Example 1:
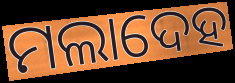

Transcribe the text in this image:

ମଲାଦେହ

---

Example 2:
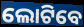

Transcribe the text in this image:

ଲୋଟିବେ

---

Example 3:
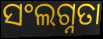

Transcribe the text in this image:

ସଂଲଗ୍ନତା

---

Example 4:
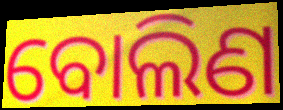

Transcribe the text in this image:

ବୋଲିଣ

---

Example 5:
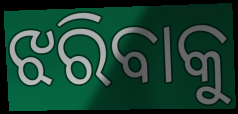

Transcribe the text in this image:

ଝରିବାକୁ